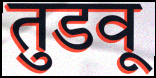
तुडवू